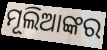
ମୂଲିଆଙ୍କର